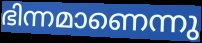
ഭിന്നമാണെന്നു